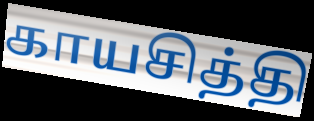
காயசித்தி